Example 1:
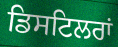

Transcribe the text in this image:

ਡਿਸਟਿਲਰਾਂ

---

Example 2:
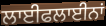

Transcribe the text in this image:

ਲਾਈਫਲਾਈਨਾਂ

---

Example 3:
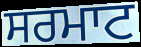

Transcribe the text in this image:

ਸਰਮਾਟ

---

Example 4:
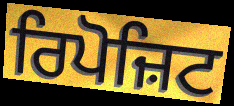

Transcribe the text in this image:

ਰਿਪੋਜ਼ਿਟ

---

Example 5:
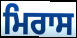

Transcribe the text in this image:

ਮਿਰਾਸ